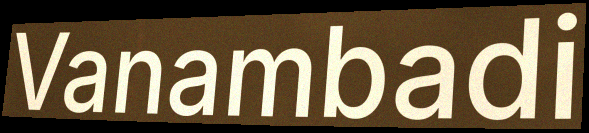
Vanambadi